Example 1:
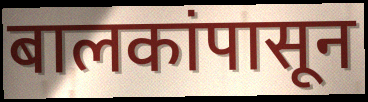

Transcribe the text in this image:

बालकांपासून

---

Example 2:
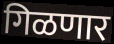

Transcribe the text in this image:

गिळणार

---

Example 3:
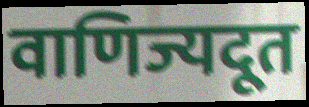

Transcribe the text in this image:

वाणिज्यदूत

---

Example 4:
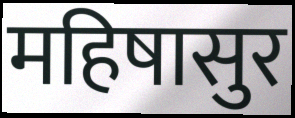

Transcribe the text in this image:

महिषासुर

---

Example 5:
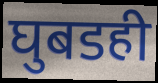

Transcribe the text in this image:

घुबडही